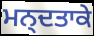
ਮਨ੍ਦਤਾਕੇ